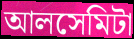
আলসেমিটা